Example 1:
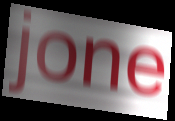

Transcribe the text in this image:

jone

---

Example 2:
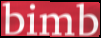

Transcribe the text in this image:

bimb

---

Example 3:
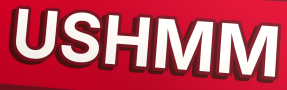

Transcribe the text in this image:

USHMM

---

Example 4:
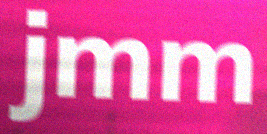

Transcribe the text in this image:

jmm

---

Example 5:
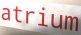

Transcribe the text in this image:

atrium